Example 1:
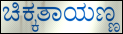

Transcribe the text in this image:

ಚಿಕ್ಕತಾಯಣ್ಣ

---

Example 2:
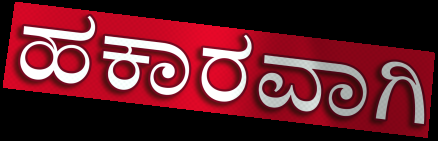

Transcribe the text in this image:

ಹಕಾರವಾಗಿ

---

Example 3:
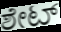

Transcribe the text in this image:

ಶೇಟ್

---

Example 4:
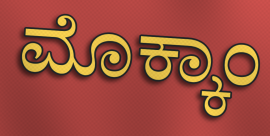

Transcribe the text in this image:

ಮೊಕ್ಕಾಂ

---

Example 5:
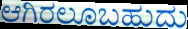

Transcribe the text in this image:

ಆಗಿರಲೂಬಹುದು